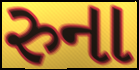
રુના